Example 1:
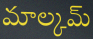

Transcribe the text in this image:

మాల్కమ్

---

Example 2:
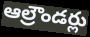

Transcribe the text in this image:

ఆల్రౌండర్లు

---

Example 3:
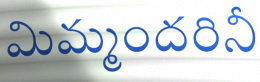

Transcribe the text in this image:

మిమ్మందరినీ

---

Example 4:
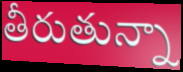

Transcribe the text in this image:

తీరుతున్నా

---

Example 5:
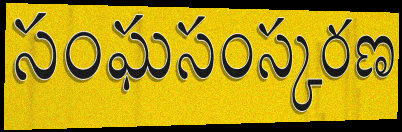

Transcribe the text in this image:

సంఘసంస్కరణ